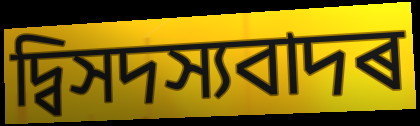
দ্বিসদস্যবাদৰ